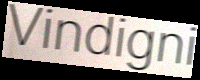
Vindigni